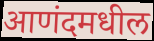
आणंदमधील